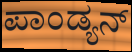
ಪಾಂಡ್ಯನ್